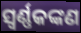
ସ୍ୱର୍ଣ୍ଣକଙ୍କଣ